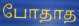
போதாத